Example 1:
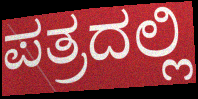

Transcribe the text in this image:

ಪತ್ರದಲ್ಲಿ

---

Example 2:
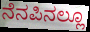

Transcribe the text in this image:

ನೆನಪಿನಲ್ಲೂ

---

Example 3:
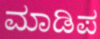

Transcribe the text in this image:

ಮಾಡಿಪ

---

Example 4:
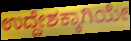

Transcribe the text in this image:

ಉದ್ದೇಶಕ್ಕಾಗಿಯೇ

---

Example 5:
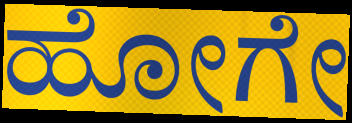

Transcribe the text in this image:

ಹೋಗೇ